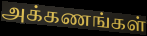
அக்கணங்கள்